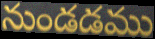
నుండడము